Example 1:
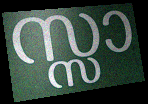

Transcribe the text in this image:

സ്സാ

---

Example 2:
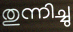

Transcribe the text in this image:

തുന്നിച്ചു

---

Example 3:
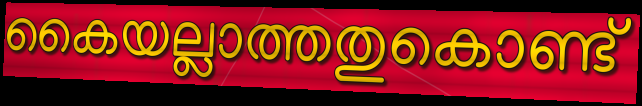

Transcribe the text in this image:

കൈയല്ലാത്തതുകൊണ്ട്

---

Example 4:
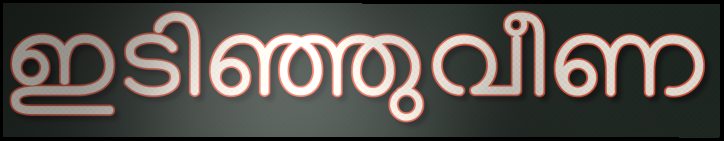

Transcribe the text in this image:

ഇടിഞ്ഞുവീണ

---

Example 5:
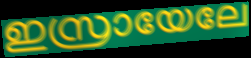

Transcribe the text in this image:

ഇസ്രായേലേ